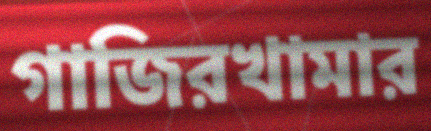
গাজিরখামার